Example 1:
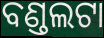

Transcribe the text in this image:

ବଣ୍ଡଲଟା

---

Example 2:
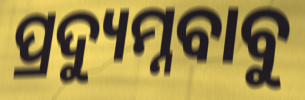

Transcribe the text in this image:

ପ୍ରଦ୍ୟୁମ୍ନବାବୁ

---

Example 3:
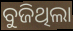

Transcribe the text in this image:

ବୁଜିଥିଲା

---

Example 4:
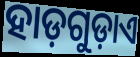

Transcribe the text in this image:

ହାଡ଼ଗୁଡ଼ାଏ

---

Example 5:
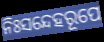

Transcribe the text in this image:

ନିଃସନ୍ଦେହରୂପେ